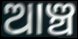
ଆଞ୍ଚ